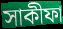
সাকীফা